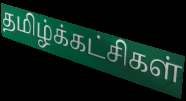
தமிழ்க்கட்சிகள்